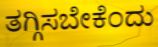
ತಗ್ಗಿಸಬೇಕೆಂದು